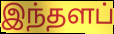
இந்தளப்